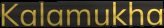
Kalamukha